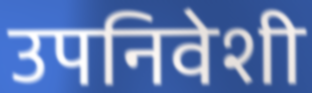
उपनिवेशी